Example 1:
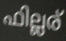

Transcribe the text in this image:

ഫില്ലര്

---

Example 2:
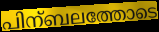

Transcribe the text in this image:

പിന്ബലത്തോടെ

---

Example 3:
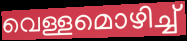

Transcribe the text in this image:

വെള്ളമൊഴിച്ച്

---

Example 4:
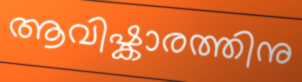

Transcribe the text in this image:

ആവിഷ്കാരത്തിനു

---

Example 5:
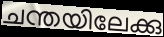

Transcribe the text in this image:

ചന്തയിലേക്കു